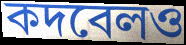
কদবেলও